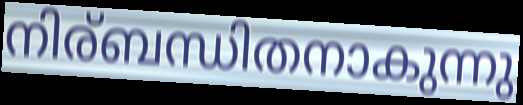
നിര്ബന്ധിതനാകുന്നു